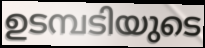
ഉടമ്പടിയുടെ